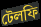
টেলফি